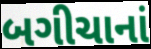
બગીચાનાં